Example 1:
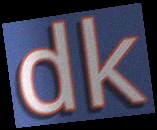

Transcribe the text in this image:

dk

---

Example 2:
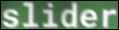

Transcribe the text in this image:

slider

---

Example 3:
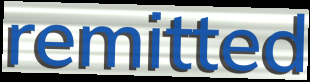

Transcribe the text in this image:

remitted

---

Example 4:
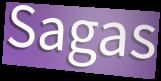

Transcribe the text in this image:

Sagas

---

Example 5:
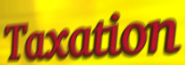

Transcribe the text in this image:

Taxation